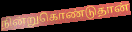
நின்றுகொண்டுதான்